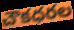
చౌకధరల